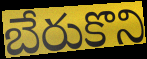
బేరుకొని